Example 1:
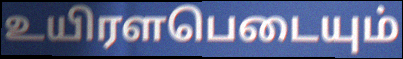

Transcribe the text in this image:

உயிரளபெடையும்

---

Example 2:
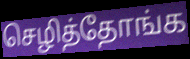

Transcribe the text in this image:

செழித்தோங்க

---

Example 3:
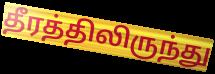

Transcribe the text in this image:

தீரத்திலிருந்து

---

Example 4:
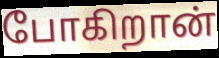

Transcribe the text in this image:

போகிறான்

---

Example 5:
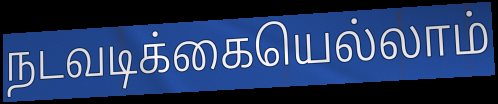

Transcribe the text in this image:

நடவடிக்கையெல்லாம்